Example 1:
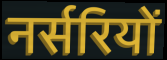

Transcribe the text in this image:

नर्सरियों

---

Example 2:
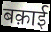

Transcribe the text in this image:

बक़ाई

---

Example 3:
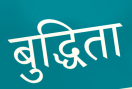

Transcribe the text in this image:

बुद्धिता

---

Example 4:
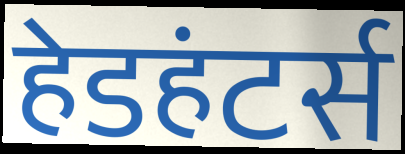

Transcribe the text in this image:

हेडहंटर्स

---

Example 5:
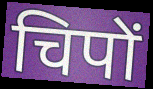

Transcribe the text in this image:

चिपों